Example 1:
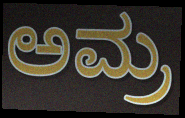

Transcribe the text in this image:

ಅಮ್ರ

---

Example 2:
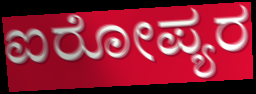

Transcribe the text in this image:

ಐರೋಪ್ಯರ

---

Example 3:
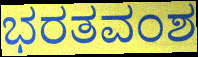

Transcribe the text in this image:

ಭರತವಂಶ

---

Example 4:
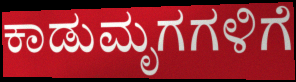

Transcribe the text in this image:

ಕಾಡುಮೃಗಗಳಿಗೆ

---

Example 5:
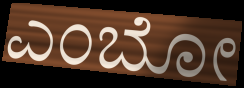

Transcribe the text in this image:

ಎಂಬೋ